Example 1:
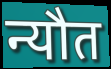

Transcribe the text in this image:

न्यौत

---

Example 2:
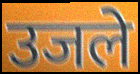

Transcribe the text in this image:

उजले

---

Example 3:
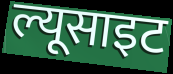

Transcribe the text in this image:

ल्यूसाइट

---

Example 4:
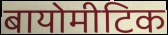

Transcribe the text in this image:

बायोमीटिक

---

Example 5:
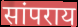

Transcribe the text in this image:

सांपराय